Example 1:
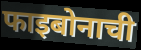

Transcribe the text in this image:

फाइबोनाची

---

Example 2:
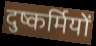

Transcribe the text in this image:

दुष्कर्मियों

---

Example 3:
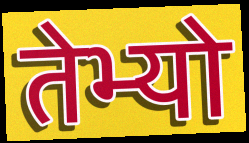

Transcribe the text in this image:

तेभ्यो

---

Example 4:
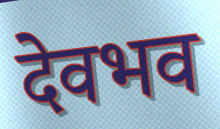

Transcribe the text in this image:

देवभव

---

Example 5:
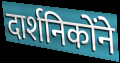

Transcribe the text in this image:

दार्शनिकोंने